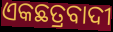
ଏକଛତ୍ରବାଦୀ